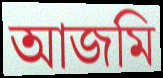
আজমি